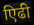
एिढी